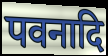
पवनादि